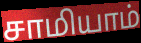
சாமியாம்